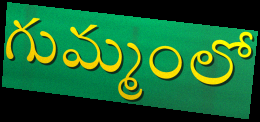
గుమ్మంలో